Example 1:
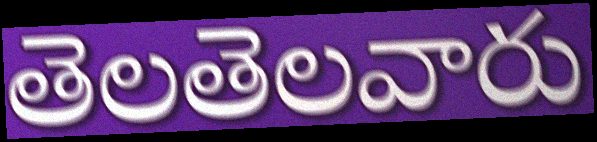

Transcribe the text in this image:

తెలతెలవారు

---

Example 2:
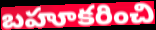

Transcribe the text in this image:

బహూకరించి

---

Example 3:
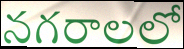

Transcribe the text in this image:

నగరాలలో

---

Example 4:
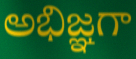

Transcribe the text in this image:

అభిజ్ఞగా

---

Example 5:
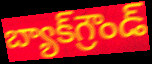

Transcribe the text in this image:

బ్యాక్‌గ్రౌండ్